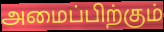
அமைப்பிற்கும்